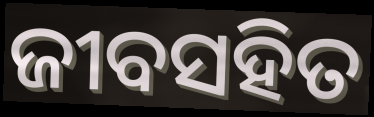
ଜୀବସହିତ